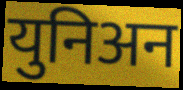
युनिअन